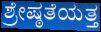
ಶ್ರೇಷ್ಠತೆಯತ್ತ